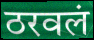
ठरवलं